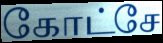
கோட்சே